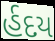
ર્હદય